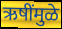
ऋषींमुळे